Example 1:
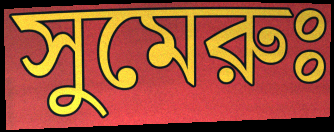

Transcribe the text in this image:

সুমেরুঃ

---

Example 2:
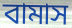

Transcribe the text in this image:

বামাস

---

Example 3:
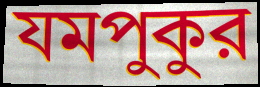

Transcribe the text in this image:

যমপুকুর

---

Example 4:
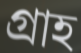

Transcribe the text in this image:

গ্রাহ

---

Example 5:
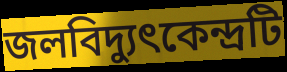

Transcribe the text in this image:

জলবিদ্যুৎকেন্দ্রটি